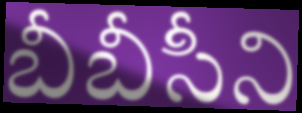
బీబీసీని